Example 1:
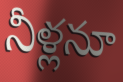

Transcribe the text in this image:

నీళ్లనూ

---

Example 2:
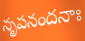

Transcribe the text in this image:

నృపనందనాః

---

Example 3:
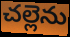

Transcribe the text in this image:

చల్లెను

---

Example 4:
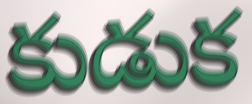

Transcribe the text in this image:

కుడుక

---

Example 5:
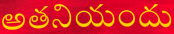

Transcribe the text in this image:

అతనియందు